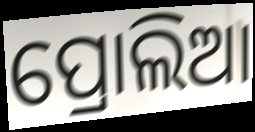
ପ୍ରୋଲିଆ